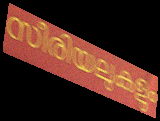
സീരിയലുകളും